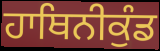
ਹਾਥਿਨੀਕੁੰਡ